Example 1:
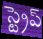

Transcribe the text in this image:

స్ట్రెప్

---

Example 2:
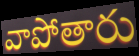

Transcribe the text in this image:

వాపోతారు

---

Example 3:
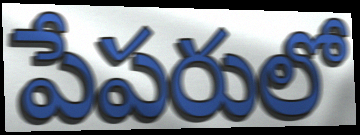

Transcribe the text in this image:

పేపరులో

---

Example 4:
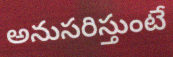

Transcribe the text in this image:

అనుసరిస్తుంటే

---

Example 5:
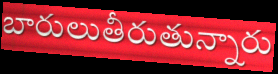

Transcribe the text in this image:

బారులుతీరుతున్నారు